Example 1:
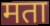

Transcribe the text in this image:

मता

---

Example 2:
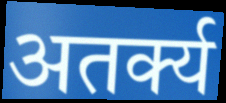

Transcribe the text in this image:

अतर्क्य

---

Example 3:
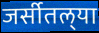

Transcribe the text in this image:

जर्सीतल्या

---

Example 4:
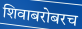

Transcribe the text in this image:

शिवाबरोबरच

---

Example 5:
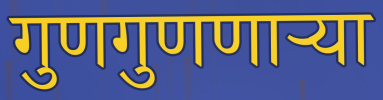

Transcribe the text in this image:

गुणगुणणाऱ्या